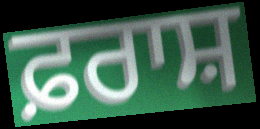
ਫ਼ਰਾਸ਼